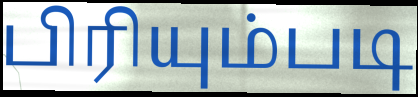
பிரியும்படி